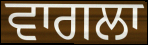
ਵਾਗਲਾ